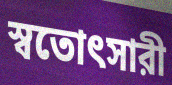
স্বতোৎসারী